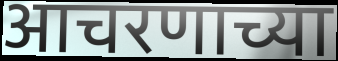
आचरणाच्या